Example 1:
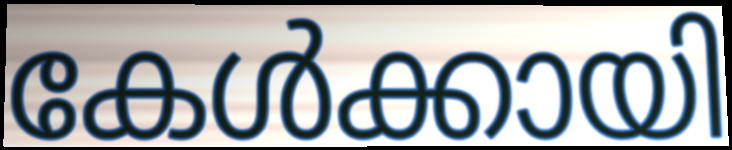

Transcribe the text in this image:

കേൾക്കായി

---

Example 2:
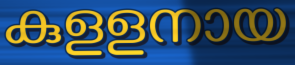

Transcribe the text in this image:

കുളളനായ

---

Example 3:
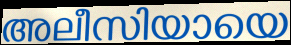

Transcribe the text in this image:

അലീസിയായെ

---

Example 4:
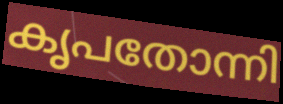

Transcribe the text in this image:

കൃപതോന്നി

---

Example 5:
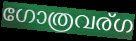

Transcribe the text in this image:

ഗോത്രവര്ഗ